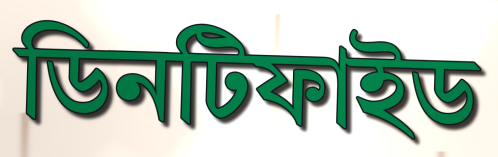
ডিনটিফাইড